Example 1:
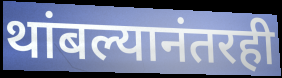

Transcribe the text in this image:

थांबल्यानंतरही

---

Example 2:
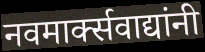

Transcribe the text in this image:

नवमार्क्सवाद्यांनी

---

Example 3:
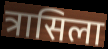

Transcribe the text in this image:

त्रासिला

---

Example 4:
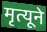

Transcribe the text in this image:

मृत्यूने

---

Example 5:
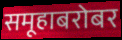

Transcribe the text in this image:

समूहाबरोबर